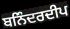
ਬਨਿੰਦਰਦੀਪ